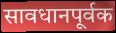
सावधानपूर्वक